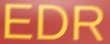
EDR